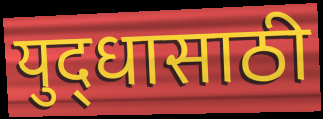
युद्धासाठी